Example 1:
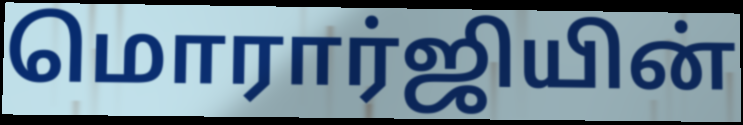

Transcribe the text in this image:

மொரார்ஜியின்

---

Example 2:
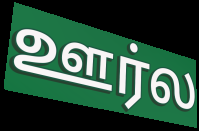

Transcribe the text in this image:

ஊர்ல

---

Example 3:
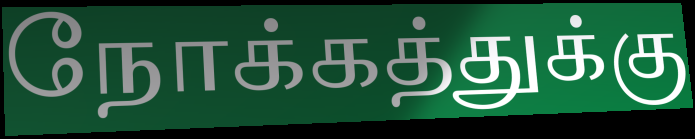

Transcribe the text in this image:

நோக்கத்துக்கு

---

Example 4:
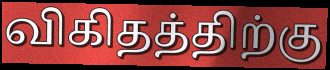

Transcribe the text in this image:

விகிதத்திற்கு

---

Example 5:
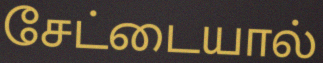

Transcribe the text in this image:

சேட்டையால்